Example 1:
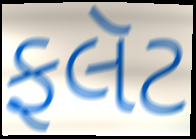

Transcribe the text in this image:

ફલૅટ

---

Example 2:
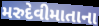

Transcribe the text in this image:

મરુદેવીમાતાના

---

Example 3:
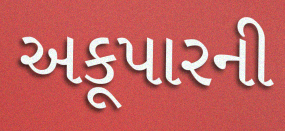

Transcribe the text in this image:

અકૂપારની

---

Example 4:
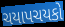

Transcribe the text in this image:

ચયાપચયકો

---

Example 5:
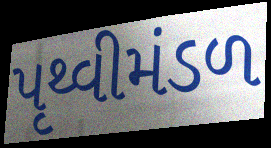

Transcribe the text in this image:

પૃથ્વીમંડળ